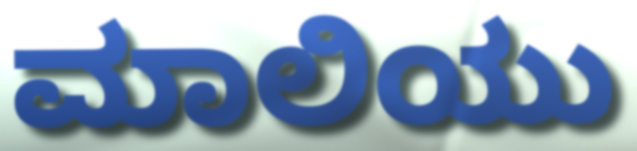
ಮಾಲಿಯು